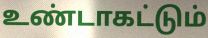
உண்டாகட்டும்